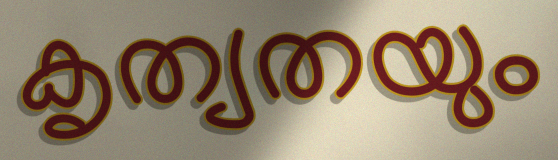
കൃത്യതയും